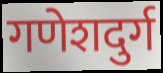
गणेशदुर्ग